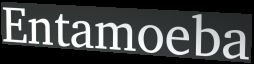
Entamoeba